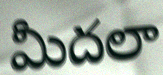
మీదలా